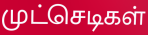
முட்செடிகள்